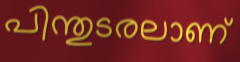
പിന്തുടരലാണ്